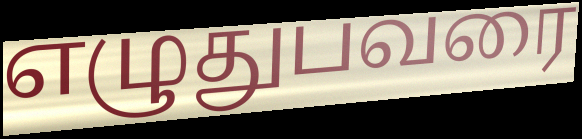
எழுதுபவரை